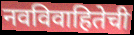
नवविवाहितेची